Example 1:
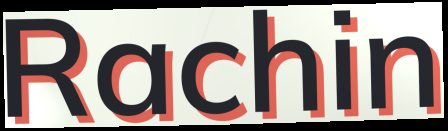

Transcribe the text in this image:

Rachin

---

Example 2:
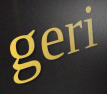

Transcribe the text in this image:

geri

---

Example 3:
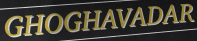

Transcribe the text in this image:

GHOGHAVADAR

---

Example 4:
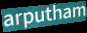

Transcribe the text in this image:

arputham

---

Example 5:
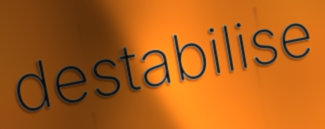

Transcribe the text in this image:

destabilise